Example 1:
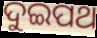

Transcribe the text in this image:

ଦୁଇପଥ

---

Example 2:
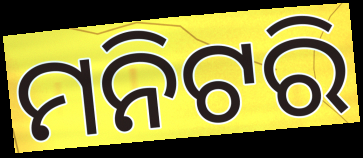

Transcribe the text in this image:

ମନିଟରି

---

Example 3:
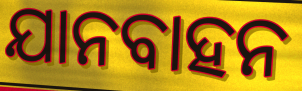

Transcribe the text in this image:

ଯାନବାହନ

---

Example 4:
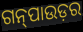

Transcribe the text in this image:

ଗନ୍‍ପାଉଡ଼ର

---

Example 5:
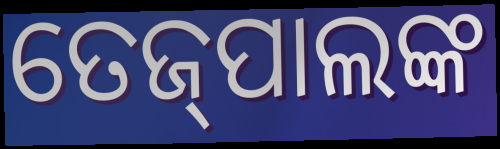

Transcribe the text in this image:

ତେଜ୍‌ପାଲଙ୍କ